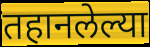
तहानलेल्या